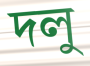
দলু